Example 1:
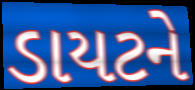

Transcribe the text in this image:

ડાયટને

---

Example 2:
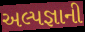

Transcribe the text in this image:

અલ્પજ્ઞાની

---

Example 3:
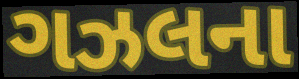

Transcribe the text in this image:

ગઝલના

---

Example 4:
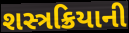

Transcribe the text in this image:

શસ્ત્રક્રિયાની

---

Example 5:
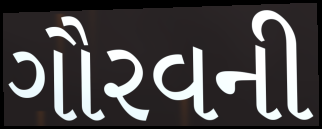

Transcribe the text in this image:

ગૌરવની